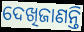
ଦେଖିଜାଣନ୍ତି